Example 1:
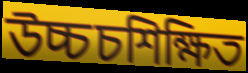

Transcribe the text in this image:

উচ্চচশিক্ষিত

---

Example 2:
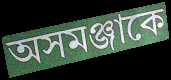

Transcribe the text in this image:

অসমঞ্জাকে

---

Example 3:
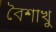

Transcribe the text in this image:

বৈশাখু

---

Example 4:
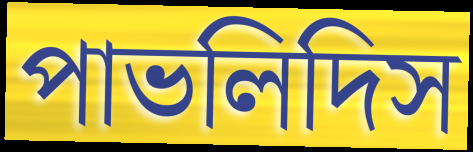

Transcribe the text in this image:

পাভলিদিস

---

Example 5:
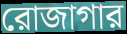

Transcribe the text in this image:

রোজাগার